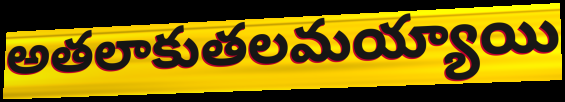
అతలాకుతలమయ్యాయి